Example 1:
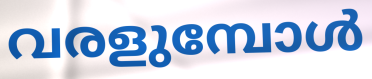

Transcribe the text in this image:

വരളുമ്പോൾ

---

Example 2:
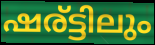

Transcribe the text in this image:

ഷര്ട്ടിലും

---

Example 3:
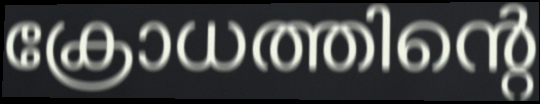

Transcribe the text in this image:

ക്രോധത്തിന്റെ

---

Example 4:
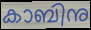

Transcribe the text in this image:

കാബിനു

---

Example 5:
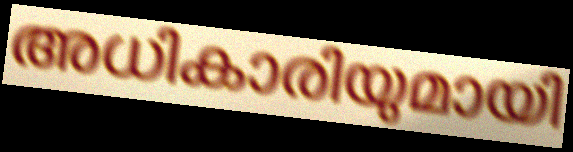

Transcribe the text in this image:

അധികാരിയുമായി